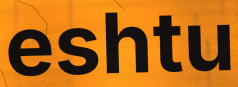
eshtu